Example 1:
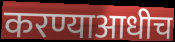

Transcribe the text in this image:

करण्याआधीच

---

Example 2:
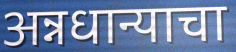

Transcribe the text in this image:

अन्नधान्याचा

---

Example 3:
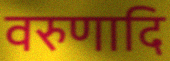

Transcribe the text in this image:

वरुणादि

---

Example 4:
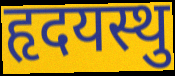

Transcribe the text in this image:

हृदयस्थु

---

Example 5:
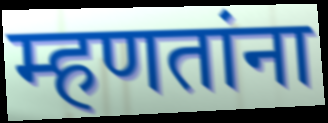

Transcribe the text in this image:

म्हणतांना